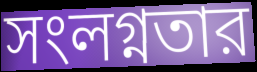
সংলগ্নতার